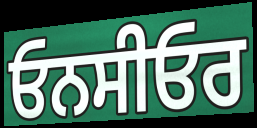
ਓਨਸੀਓਰ